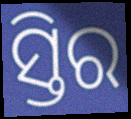
ସ୍ତିର